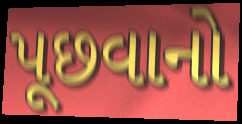
પૂછવાનો